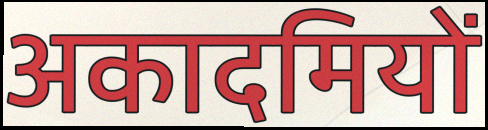
अकादमियों